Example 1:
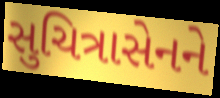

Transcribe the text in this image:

સુચિત્રાસેનને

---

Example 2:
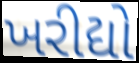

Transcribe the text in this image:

ખરીદ્યો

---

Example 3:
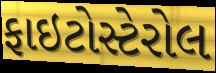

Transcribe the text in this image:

ફાઇટોસ્ટેરોલ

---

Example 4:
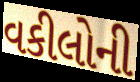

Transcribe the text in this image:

વકીલોની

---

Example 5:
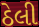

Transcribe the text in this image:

ઠેલી